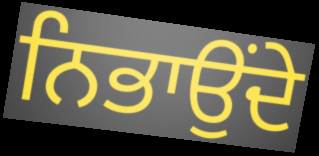
ਨਿਭਾਉਂਦੇ